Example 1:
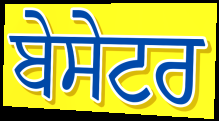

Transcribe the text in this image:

ਬੇਸੇਟਰ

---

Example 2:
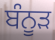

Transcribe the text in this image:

ਬੰਨੂੜ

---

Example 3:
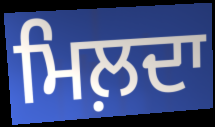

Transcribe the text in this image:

ਮਿਲ਼ਦਾ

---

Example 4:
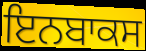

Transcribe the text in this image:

ਇਨਬਾਕਸ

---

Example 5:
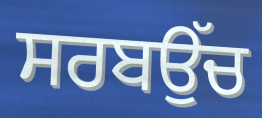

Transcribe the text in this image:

ਸਰਬਉੱਚ